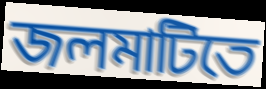
জলমাটিতে